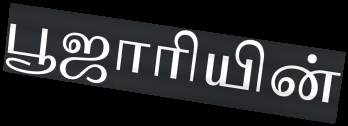
பூஜாரியின்